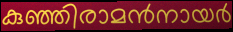
കുഞ്ഞിരാമൻനായർ